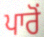
ਪਾਰੋਂ